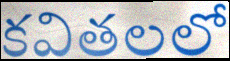
కవితలలో